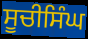
ਸੂਚੀਸਿੰਘ